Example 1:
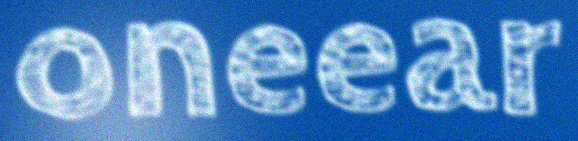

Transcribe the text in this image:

oneear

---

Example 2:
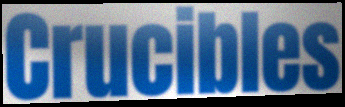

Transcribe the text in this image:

Crucibles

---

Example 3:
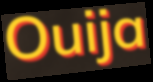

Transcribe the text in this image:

Ouija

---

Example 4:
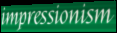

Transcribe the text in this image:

impressionism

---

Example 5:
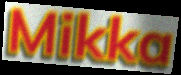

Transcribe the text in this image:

Mikka